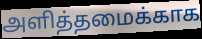
அளித்தமைக்காக